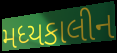
મધ્યકાલીન